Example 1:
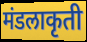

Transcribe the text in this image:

मंडलाकृती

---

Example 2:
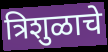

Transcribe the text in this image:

त्रिशुळाचे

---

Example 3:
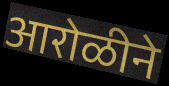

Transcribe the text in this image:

आरोळीने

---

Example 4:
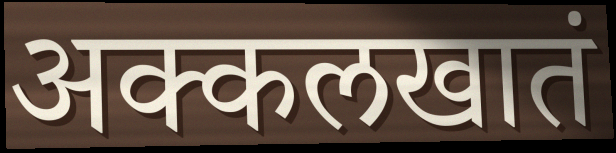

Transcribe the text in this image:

अक्कलखातं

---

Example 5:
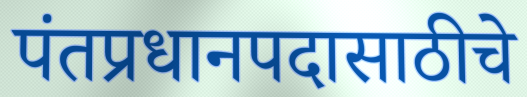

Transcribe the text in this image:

पंतप्रधानपदासाठीचे